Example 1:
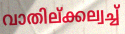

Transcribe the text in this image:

വാതില്ക്കല്വച്ച്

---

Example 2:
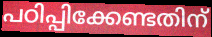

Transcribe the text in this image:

പഠിപ്പിക്കേണ്ടതിന്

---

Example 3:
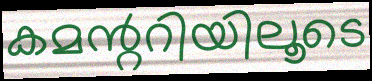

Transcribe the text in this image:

കമന്ററിയിലൂടെ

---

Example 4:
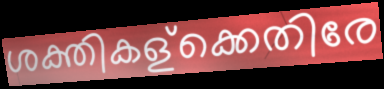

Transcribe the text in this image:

ശക്തികള്ക്കെതിരേ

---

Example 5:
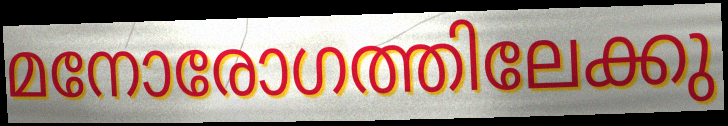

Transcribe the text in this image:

മനോരോഗത്തിലേക്കു